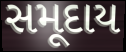
સમૂદાય